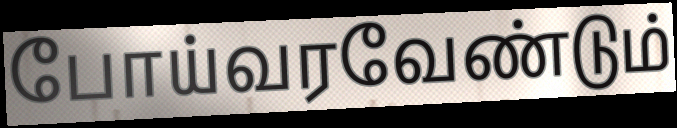
போய்வரவேண்டும்